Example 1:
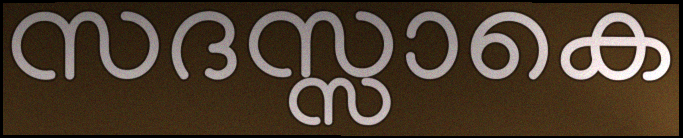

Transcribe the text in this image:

സദസ്സാകെ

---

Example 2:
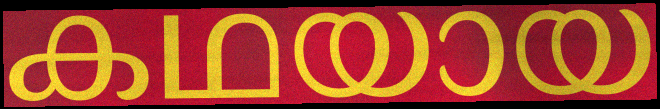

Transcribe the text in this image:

കഥയായ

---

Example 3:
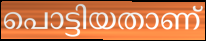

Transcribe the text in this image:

പൊട്ടിയതാണ്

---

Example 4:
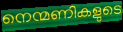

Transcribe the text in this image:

നെന്മണികളുടെ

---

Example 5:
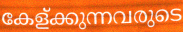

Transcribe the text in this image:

കേള്ക്കുന്നവരുടെ